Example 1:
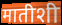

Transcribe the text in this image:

मातीशी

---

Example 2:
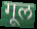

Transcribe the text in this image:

गूल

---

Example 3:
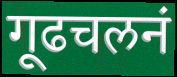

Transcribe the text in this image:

गूढचलनं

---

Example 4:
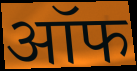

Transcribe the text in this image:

ऑफ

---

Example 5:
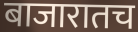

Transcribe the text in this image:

बाजारातच